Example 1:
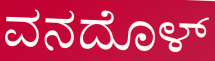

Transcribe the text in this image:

ವನದೊಳ್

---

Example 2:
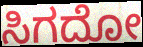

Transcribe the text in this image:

ಸಿಗದೋ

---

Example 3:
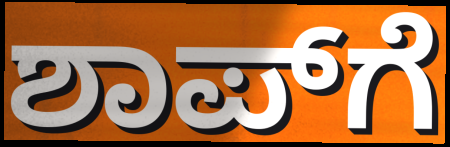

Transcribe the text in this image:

ಶಾಪ್‌ಗೆ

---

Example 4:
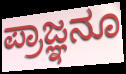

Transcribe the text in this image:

ಪ್ರಾಜ್ಞನೂ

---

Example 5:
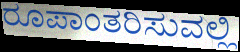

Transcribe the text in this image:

ರೂಪಾಂತರಿಸುವಲ್ಲಿ